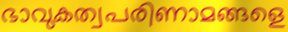
ഭാവുകത്വപരിണാമങ്ങളെ